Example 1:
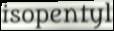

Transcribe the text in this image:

isopentyl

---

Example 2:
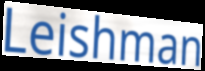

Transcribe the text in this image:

Leishman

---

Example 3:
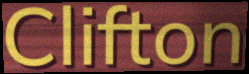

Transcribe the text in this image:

Clifton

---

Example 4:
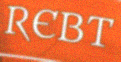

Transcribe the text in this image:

REBT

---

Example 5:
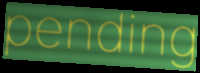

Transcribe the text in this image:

pending